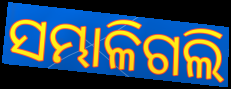
ସମ୍ଭାଳିଗଲି